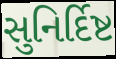
સુનિર્દિષ્ટ